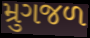
મ્રુગજળ